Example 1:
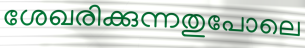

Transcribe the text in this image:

ശേഖരിക്കുന്നതുപോലെ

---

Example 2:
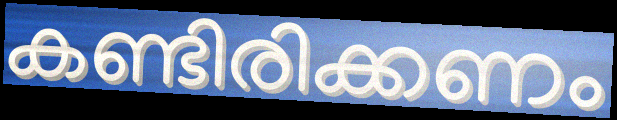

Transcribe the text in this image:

കണ്ടിരിക്കണം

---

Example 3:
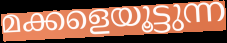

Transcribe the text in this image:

മക്കളെയൂട്ടുന്ന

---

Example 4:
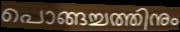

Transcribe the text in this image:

പൊങ്ങച്ചത്തിനും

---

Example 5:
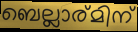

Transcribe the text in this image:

ബെല്ലാര്മിന്